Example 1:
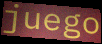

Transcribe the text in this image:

juego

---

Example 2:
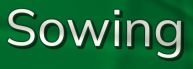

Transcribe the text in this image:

Sowing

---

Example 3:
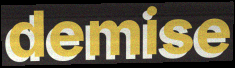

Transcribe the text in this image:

demise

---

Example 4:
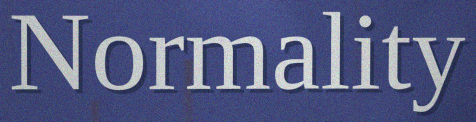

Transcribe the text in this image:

Normality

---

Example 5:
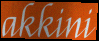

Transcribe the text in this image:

akkini